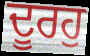
ਦੂਰਹੁ